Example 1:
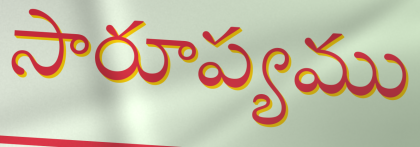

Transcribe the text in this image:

సారూప్యము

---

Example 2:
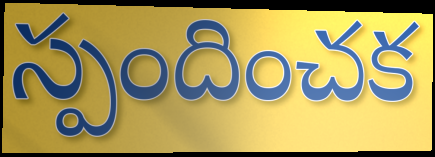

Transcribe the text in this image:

స్పందించక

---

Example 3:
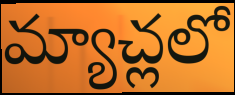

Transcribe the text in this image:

మ్యాచ్లలో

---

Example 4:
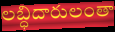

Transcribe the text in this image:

లబ్ధిదారులంతా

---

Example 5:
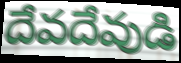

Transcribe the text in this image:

దేవదేవుడి